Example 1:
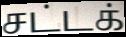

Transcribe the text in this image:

சட்டக்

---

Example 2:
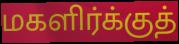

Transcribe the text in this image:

மகளிர்க்குத்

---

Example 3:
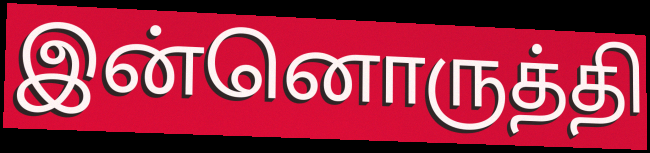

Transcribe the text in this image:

இன்னொருத்தி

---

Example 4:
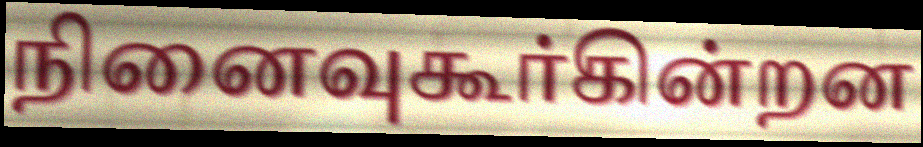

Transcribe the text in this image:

நினைவுகூர்கின்றன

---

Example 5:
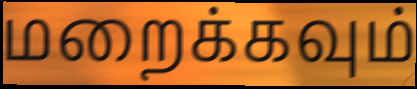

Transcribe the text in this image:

மறைக்கவும்